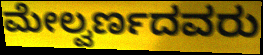
ಮೇಲ್ವರ್ಣದವರು